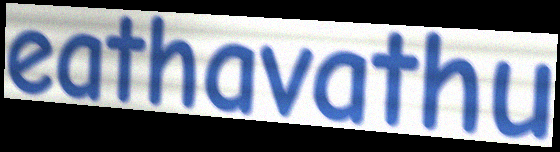
eathavathu